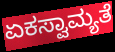
ಏಕಸ್ವಾಮ್ಯತೆ